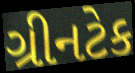
ગ્રીનટેક